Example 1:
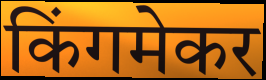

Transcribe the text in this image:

किंगमेकर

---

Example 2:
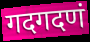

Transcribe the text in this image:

गदगदणं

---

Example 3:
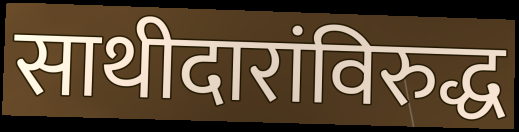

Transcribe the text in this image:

साथीदारांविरुद्ध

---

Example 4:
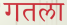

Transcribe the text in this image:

गतला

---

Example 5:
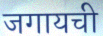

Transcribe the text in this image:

जगायची